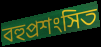
বহুপ্রশংসিত